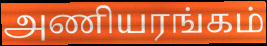
அணியரங்கம்